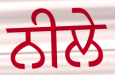
ਨੀਲੇ